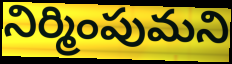
నిర్మింపుమని